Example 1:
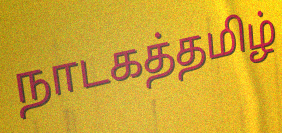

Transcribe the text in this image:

நாடகத்தமிழ்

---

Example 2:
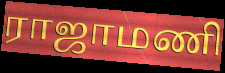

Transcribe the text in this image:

ராஜாமணி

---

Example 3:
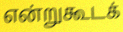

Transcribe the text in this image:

என்றுகூடக்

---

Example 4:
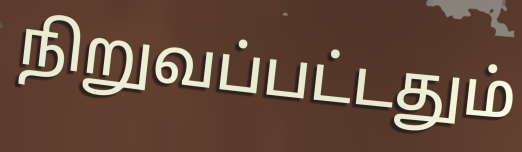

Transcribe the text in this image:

நிறுவப்பட்டதும்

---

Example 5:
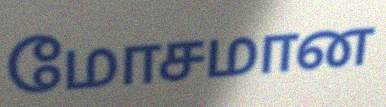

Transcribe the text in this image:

மோசமான